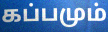
கப்பமும்